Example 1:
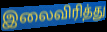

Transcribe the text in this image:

இலைவிரித்து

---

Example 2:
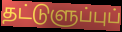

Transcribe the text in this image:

தட்டுளுப்புப்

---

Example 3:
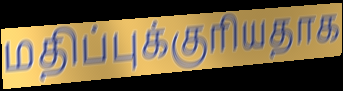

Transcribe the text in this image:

மதிப்புக்குரியதாக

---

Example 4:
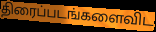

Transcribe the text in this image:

திரைப்படங்களைவிட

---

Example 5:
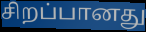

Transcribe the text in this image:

சிறப்பானது